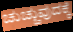
ಚುಚ್ಚುವುದಕ್ಕೆ